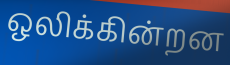
ஒலிக்கின்றன